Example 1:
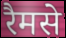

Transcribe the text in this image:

रैमसे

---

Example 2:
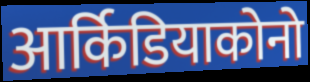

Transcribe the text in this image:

आर्किडियाकोनो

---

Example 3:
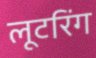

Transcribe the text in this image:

लूटरिंग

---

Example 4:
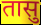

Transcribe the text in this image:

तासु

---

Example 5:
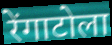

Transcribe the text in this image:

रेंगाटोला